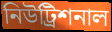
নিউট্রিশনাল